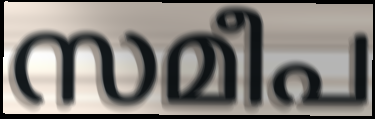
സമീപ